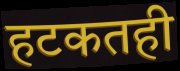
हटकतही